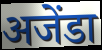
अजेंडा